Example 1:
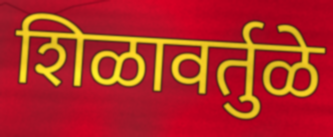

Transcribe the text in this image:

शिळावर्तुळे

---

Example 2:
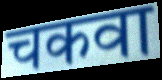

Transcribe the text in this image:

चकवा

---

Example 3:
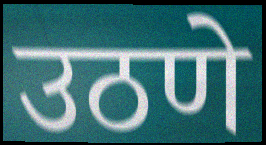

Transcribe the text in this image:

उठणे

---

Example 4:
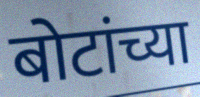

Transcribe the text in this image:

बोटांच्या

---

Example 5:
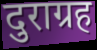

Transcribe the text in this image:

दुराग्रह